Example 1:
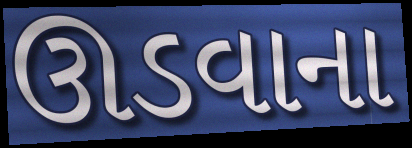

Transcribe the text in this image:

ઊડવાના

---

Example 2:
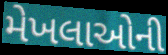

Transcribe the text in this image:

મેખલાઓની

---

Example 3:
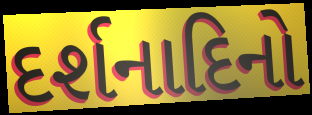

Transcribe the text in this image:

દર્શનાદિનો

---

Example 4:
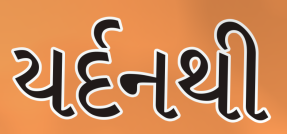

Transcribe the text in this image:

યર્દનથી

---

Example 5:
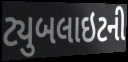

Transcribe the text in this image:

ટ્યુબલાઇટની